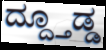
ದ್ದ್ತೂಡ್ಡ